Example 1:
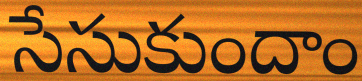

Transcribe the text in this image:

సేసుకుందాం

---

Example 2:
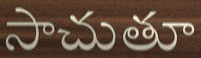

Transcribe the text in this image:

సాచుతూ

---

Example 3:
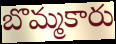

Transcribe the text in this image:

బొమ్మకారు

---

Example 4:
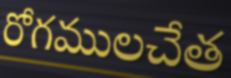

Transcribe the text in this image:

రోగములచేత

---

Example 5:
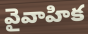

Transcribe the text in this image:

వైవాహిక